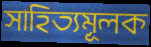
সাহিত্যমূলক